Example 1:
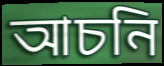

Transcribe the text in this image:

আচনি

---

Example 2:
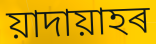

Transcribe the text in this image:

য়াদায়াহৰ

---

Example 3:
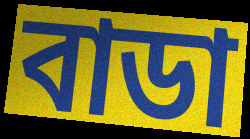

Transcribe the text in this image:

বাডা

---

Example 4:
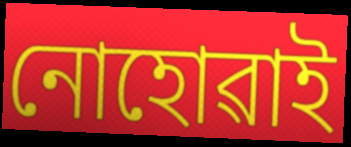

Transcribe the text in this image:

নোহোৱাই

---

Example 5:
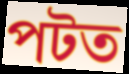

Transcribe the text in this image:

পটত